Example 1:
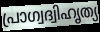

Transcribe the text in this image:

പ്രാഗ്വദ്വിഹൃത്യ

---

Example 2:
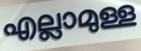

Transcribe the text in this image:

എല്ലാമുള്ള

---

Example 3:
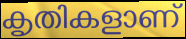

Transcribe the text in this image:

കൃതികളാണ്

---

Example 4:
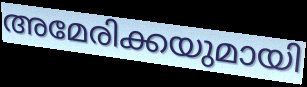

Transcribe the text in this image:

അമേരിക്കയുമായി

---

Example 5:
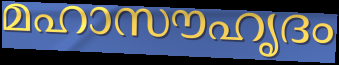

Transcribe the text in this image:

മഹാസൗഹൃദം